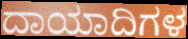
ದಾಯಾದಿಗಳ